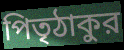
পিতৃঠাকুর